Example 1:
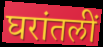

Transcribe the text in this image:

घरांतलीं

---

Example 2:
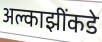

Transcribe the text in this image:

अल्काझींकडे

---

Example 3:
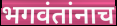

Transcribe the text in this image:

भगवंतांनाच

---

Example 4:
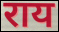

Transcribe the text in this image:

राय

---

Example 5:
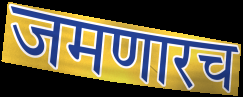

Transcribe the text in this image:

जमणारच